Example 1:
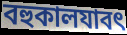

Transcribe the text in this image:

বহুকালযাবৎ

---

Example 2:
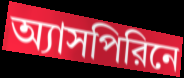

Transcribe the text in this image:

অ্যাসপিরিনে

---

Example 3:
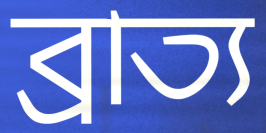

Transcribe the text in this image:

ব্রাত্য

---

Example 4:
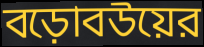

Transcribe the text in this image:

বড়োবউয়ের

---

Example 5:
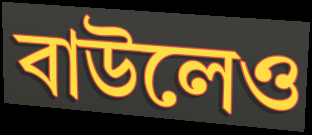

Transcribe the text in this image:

বাউলেও